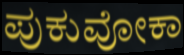
ಪುಕುವೋಕಾ